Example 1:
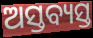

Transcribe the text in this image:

ଅସ୍ତବ୍ୟସ୍ତ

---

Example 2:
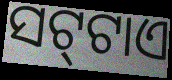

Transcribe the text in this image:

ସଟ୍‍ଟାଏ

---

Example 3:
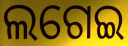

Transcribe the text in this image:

ଲଗେଇ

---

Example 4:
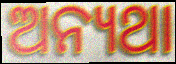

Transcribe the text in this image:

ଅନ୍ୟଥା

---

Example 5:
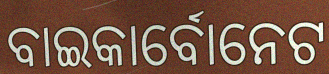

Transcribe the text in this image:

ବାଇକାର୍ବୋନେଟ